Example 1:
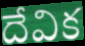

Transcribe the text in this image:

దేవిక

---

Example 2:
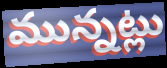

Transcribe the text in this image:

మున్నట్లు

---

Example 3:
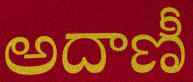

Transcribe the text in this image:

అదాణీ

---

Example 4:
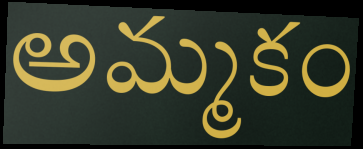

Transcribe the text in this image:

అమ్మకం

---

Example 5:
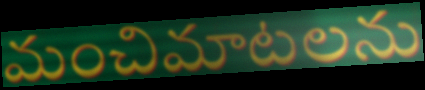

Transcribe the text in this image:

మంచిమాటలను